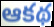
ఆకథ